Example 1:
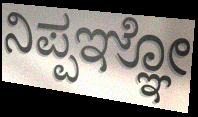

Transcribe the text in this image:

ನಿಪ್ಪಞ್ಞೋ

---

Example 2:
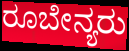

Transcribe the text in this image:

ರೂಬೇನ್ಯರು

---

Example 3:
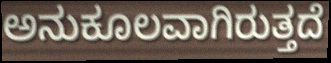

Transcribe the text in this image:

ಅನುಕೂಲವಾಗಿರುತ್ತದೆ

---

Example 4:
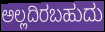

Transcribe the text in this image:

ಅಲ್ಲದಿರಬಹುದು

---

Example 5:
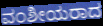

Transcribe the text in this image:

ವಂಶೀಯರಾದ